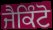
ਜੈਕਿੰਟੋ